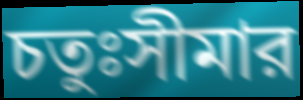
চতুঃসীমার